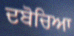
ਦਬੋਚਿਆ